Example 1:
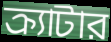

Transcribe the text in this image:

ক্র্যাটার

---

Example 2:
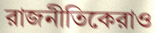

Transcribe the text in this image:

রাজনীতিকেরাও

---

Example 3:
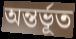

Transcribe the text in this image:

অন্তর্ভূত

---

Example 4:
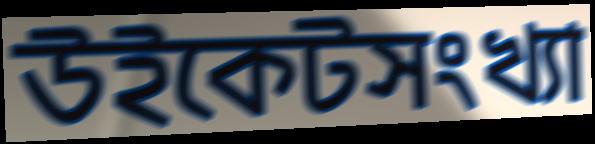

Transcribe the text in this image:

উইকেটসংখ্যা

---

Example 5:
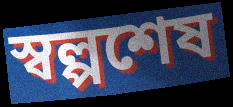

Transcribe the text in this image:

স্বল্পশেষ